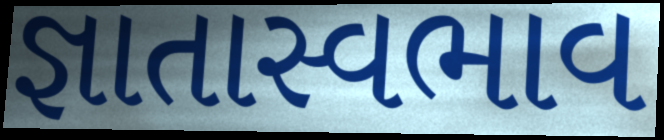
જ્ઞાતાસ્વભાવ